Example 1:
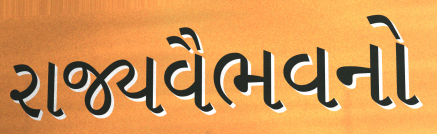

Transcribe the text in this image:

રાજ્યવૈભવનો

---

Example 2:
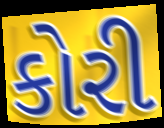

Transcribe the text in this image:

કોરી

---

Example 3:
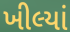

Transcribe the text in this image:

ખીલ્યાં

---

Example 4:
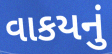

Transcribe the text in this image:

વાકયનું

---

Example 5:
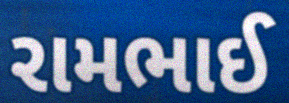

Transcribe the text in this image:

રામભાઈ